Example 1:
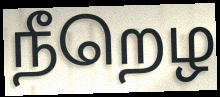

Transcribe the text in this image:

நீறெழ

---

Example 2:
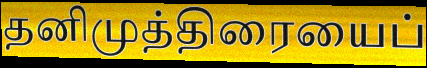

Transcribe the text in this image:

தனிமுத்திரையைப்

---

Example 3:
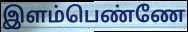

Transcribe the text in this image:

இளம்பெண்ணே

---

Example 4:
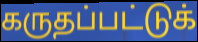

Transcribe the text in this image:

கருதப்பட்டுக்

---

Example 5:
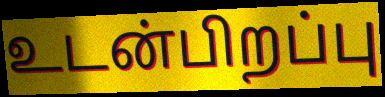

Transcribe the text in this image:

உடன்பிறப்பு